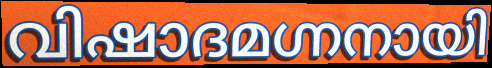
വിഷാദമഗ്നനായി